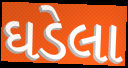
ઘડેલા